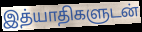
இத்யாதிகளுடன்